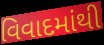
વિવાદમાંથી